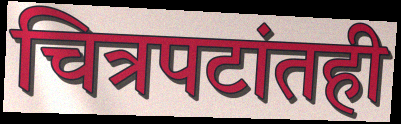
चित्रपटांतही